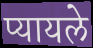
प्यायले